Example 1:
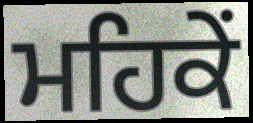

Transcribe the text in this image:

ਮਹਿਕੇਂ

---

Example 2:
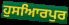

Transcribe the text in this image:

ਹੁਸਆਿਰਪੁਰ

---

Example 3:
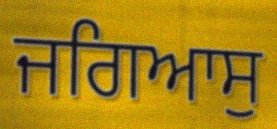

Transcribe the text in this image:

ਜਗਿਆਸੁ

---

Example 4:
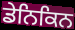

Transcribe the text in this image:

ਡੇਨਿਕਿਨ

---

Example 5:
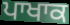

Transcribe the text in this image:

ਪਾਖਾਕ